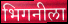
भिगनीला